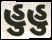
હુહુ